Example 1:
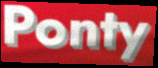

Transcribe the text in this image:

Ponty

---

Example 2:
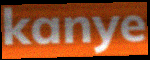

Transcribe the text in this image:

kanye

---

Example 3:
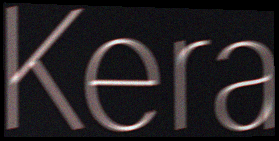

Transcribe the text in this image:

Kera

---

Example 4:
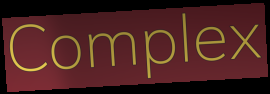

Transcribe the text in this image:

Complex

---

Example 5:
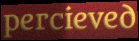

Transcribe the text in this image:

percieved